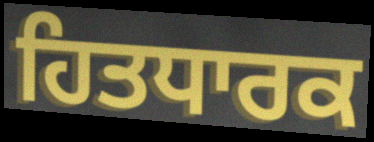
ਹਿਤਧਾਰਕ